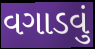
વગાડવું